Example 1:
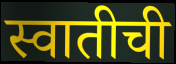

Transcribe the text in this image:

स्वातीची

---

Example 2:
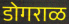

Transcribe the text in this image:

डोगराळ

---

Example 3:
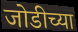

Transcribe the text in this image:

जोडीच्या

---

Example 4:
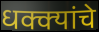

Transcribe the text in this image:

धक्क्यांचे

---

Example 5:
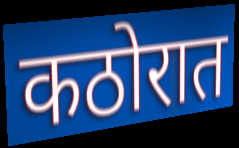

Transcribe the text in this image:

कठोरात